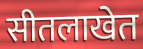
सीतलाखेत